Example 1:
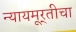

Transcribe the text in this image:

न्यायमूर्तीचा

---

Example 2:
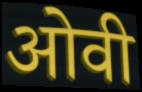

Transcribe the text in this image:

ओवी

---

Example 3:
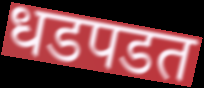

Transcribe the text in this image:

धडपडत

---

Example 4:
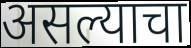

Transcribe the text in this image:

असल्याचा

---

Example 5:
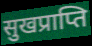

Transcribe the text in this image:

सुखप्राप्ति